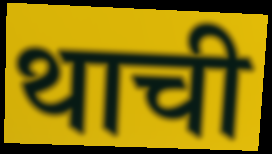
थाची